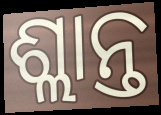
ଶ୍ଲାନ୍ତ